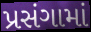
પ્રસંગામાં